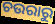
ଚଉରାରୁ